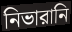
নিভারানি